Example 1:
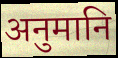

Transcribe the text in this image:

अनुमानि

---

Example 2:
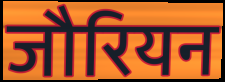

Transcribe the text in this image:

जौरियन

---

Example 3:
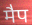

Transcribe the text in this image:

मैप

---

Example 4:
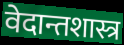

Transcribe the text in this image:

वेदान्तशास्त्र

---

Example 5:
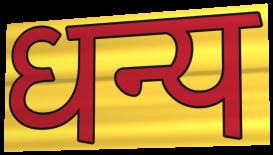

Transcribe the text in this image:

धन्य